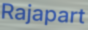
Rajapart